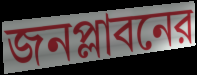
জনপ্লাবনের